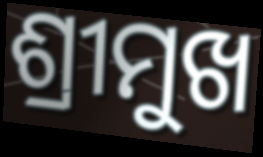
ଶ୍ରୀମୁଖ